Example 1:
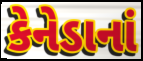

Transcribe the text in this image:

કેનેડાનાં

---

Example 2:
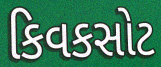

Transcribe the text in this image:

કિવકસોટ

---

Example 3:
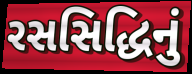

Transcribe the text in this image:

રસસિદ્ધિનું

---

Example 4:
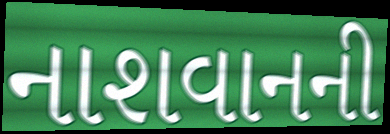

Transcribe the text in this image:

નાશવાનની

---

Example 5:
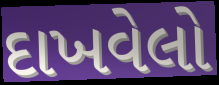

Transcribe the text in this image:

દાખવેલો